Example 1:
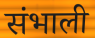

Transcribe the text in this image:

संभाली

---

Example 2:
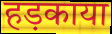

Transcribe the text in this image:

हड़काया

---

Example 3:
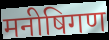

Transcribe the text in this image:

मनीषिगण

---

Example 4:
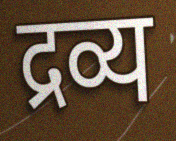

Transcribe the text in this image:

द्रव्य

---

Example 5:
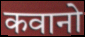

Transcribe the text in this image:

कवानो